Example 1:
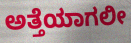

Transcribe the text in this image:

ಅತ್ತೆಯಾಗಲೀ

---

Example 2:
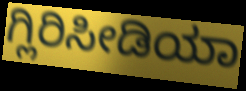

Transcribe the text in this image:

ಗ್ಲಿರಿಸೀಡಿಯಾ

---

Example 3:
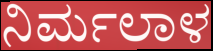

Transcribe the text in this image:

ನಿರ್ಮಲಾಳ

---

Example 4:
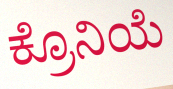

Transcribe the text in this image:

ಕ್ರೊನಿಯೆ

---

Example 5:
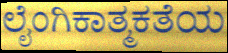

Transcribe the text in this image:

ಲೈಂಗಿಕಾತ್ಮಕತೆಯ